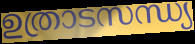
ഉത്രാടസന്ധ്യ